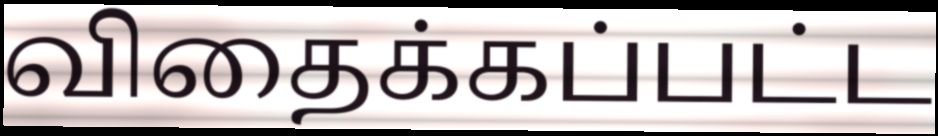
விதைக்கப்பட்ட